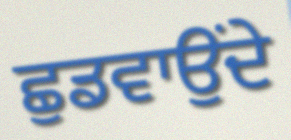
ਛੁਡਵਾਉਂਦੇ